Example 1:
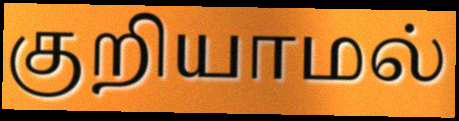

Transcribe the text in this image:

குறியாமல்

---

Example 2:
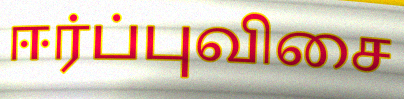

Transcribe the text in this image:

ஈர்ப்புவிசை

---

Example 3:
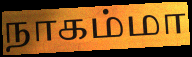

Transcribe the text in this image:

நாகம்மா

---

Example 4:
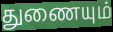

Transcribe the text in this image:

துணையும்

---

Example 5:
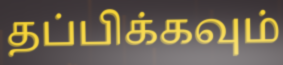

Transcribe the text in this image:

தப்பிக்கவும்